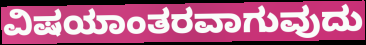
ವಿಷಯಾಂತರವಾಗುವುದು